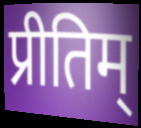
प्रीतिम्